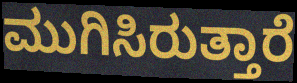
ಮುಗಿಸಿರುತ್ತಾರೆ